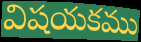
విషయకము